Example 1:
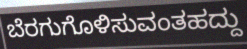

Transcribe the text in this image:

ಬೆರಗುಗೊಳಿಸುವಂತಹದ್ದು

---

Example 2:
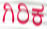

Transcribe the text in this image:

ಗಿರಿಕ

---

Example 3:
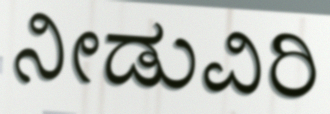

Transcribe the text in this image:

ನೀಡುವಿರಿ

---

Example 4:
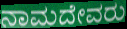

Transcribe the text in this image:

ನಾಮದೇವರು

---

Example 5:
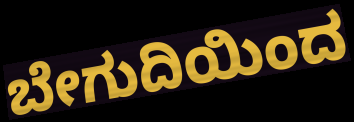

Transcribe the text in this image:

ಬೇಗುದಿಯಿಂದ